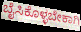
ಬೈಸಿಕೊಳ್ಳಬೇಕಾಗಿ